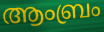
ആംബ്രം